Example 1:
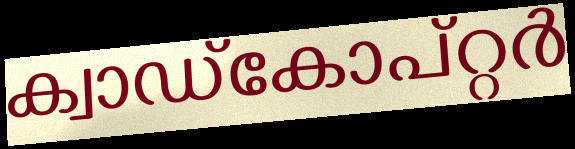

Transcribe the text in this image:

ക്വാഡ്കോപ്റ്റർ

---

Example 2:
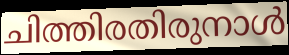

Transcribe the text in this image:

ചിത്തിരതിരുനാൾ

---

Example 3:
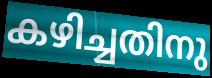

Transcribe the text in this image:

കഴിച്ചതിനു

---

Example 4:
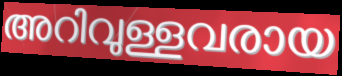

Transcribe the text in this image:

അറിവുള്ളവരായ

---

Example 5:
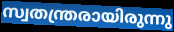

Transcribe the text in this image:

സ്വതന്ത്രരായിരുന്നു